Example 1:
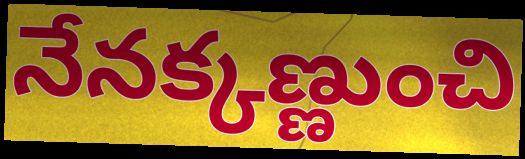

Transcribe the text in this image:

నేనక్కణ్ణుంచి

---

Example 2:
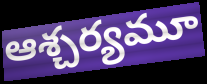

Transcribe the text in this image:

ఆశ్చర్యమూ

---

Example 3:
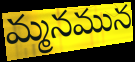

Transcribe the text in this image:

మ్మనమున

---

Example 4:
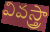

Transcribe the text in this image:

వివస్త్రా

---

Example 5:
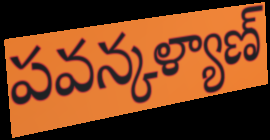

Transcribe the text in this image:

పవన్కళ్యాణ్